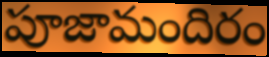
పూజామందిరం